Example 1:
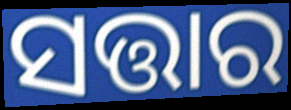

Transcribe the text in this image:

ସତ୍ତାର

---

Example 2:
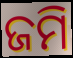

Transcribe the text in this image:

ଜମି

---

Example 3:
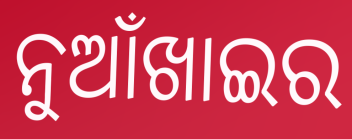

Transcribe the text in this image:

ନୁଆଁଖାଇର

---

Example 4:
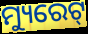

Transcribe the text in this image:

ମ୍ୟୁରେଟ୍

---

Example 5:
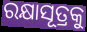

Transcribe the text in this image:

ରକ୍ଷାସୂତ୍ରକୁ